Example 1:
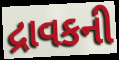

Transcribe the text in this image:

દ્રાવકની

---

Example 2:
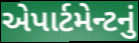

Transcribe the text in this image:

એપાર્ટમેન્ટનું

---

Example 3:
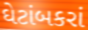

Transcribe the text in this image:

ઘેટાંબકરાં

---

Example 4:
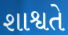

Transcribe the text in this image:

શાશ્વતે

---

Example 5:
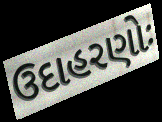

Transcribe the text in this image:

ઉદાહરણોઃ